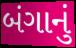
બંગાનું